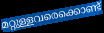
മറ്റുള്ളവരെക്കൊണ്ട്